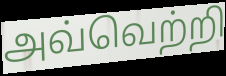
அவ்வெற்றி